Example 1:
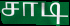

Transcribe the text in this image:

சாடி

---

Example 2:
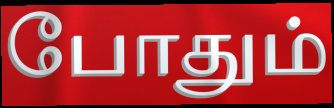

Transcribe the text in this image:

போதும்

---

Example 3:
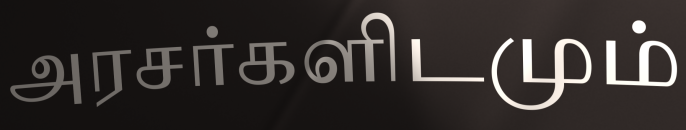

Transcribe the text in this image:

அரசர்களிடமும்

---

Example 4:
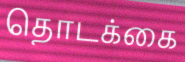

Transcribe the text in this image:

தொடக்கை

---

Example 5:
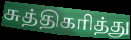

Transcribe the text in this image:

சுத்திகரித்து